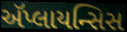
ઍપ્લાયન્સિસ